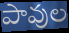
పావుల